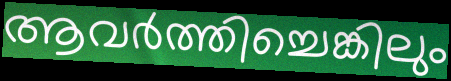
ആവർത്തിച്ചെങ്കിലും